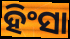
ହିଂସା